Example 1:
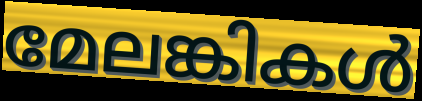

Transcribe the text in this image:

മേലങ്കികൾ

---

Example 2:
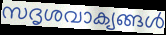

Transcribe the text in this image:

സദൃശവാക്യങ്ങൾ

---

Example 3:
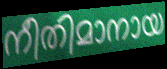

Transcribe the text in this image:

നീതിമാനായ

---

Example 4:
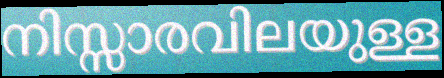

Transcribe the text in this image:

നിസ്സാരവിലയുള്ള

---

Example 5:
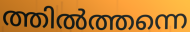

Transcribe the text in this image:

ത്തിൽത്തന്നെ